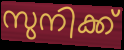
സുനിക്ക്